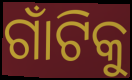
ଗାଁଟିକୁ